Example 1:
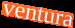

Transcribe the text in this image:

ventura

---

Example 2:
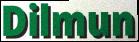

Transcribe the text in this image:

Dilmun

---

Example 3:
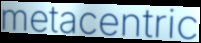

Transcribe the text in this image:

metacentric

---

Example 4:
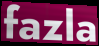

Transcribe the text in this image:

fazla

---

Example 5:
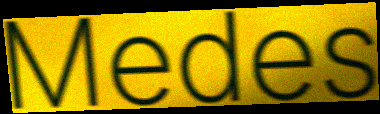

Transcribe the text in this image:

Medes